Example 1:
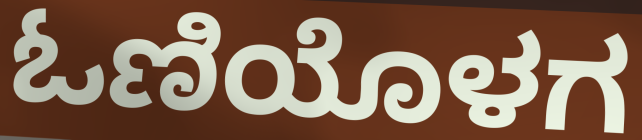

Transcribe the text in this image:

ಓಣಿಯೊಳಗ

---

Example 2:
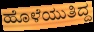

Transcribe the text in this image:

ಹೊಳೆಯುತಿದ್ದ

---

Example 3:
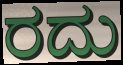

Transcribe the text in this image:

ರದು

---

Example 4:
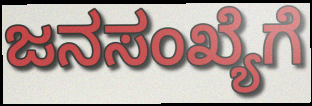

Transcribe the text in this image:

ಜನಸಂಖ್ಯೆಗೆ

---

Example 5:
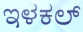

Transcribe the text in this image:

ಇಳಕಲ್